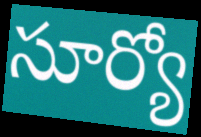
సూర్యో